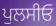
ਪੁਲਸੀਓ